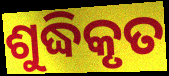
ଶୁଦ୍ଧିକୃତ